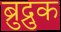
ब्रुद्रुक